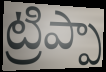
ట్రిప్పా